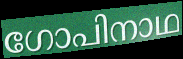
ഗോപിനാഥ